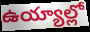
ఉయ్యాల్లో